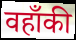
वहाँकी